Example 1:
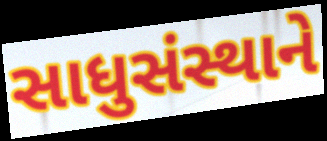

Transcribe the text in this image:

સાધુસંસ્થાને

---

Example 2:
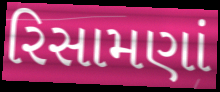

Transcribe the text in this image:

રિસામણાં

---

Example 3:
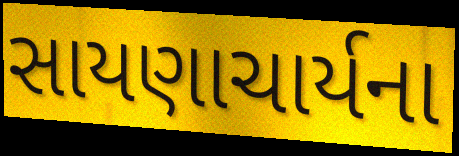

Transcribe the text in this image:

સાયણાચાર્યના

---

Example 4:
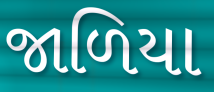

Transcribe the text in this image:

જાળિયા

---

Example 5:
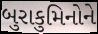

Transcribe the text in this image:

બુરાકુમિનોને